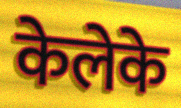
केलेके